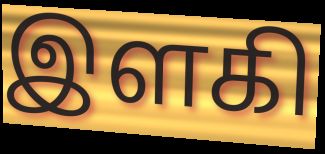
இளகி